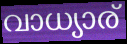
വാധ്യാര്